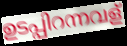
ഉടപ്പിറന്നവള്